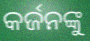
କର୍ଜନଙ୍କୁ